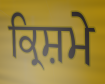
ਕ੍ਰਿਸ਼ਮੇ